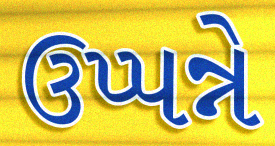
ઉપ્પન્ને